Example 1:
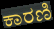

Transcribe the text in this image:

ಕಾರಣಿ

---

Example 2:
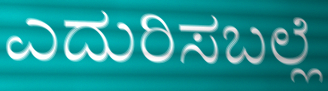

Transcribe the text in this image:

ಎದುರಿಸಬಲ್ಲೆ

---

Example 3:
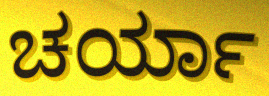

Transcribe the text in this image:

ಚರ್ಯಾ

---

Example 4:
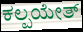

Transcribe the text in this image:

ಕಲ್ಪಯೇತ್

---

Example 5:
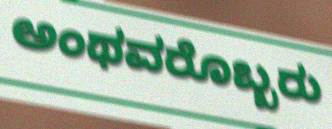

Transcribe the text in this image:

ಅಂಥವರೊಬ್ಬರು